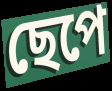
ছেপে